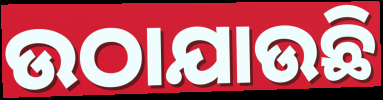
ଉଠାଯାଉଛି